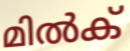
മിൽക്